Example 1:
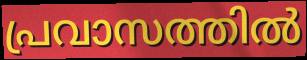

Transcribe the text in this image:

പ്രവാസത്തിൽ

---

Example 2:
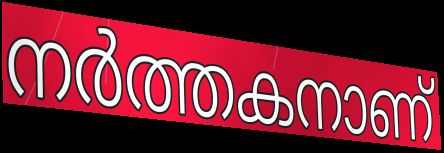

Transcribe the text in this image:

നർത്തകനാണ്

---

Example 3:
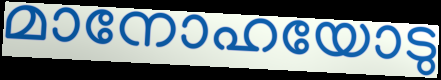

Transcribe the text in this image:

മാനോഹയോടു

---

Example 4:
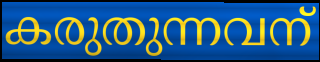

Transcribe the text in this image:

കരുതുന്നവന്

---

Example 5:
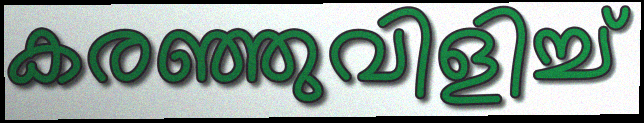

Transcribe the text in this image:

കരഞ്ഞുവിളിച്ച്